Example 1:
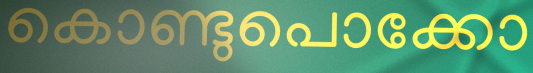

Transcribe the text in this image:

കൊണ്ടുപൊക്കോ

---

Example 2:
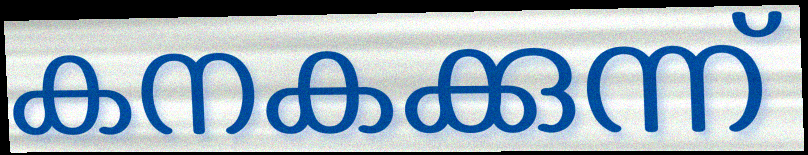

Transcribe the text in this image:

കനകക്കുന്ന്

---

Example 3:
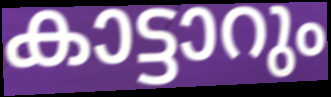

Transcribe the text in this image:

കാട്ടാറും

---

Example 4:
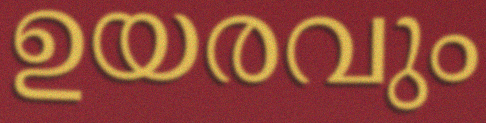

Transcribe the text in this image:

ഉയരവും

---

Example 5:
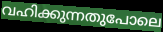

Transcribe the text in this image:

വഹിക്കുന്നതുപോലെ